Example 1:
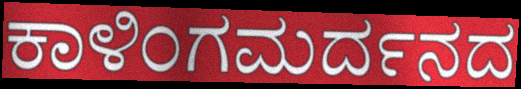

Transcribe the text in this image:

ಕಾಳಿಂಗಮರ್ದನದ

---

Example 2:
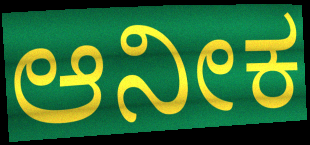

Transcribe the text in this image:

ಆನೀಕ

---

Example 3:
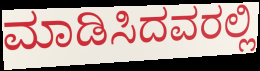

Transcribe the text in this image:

ಮಾಡಿಸಿದವರಲ್ಲಿ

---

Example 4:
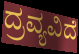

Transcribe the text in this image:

ದ್ರವ್ಯವಿದೆ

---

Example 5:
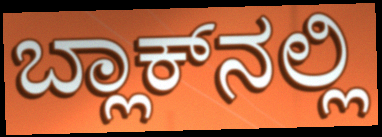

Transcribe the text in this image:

ಬ್ಲಾಕ್‌ನಲ್ಲಿ